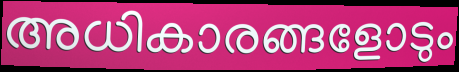
അധികാരങ്ങളോടും